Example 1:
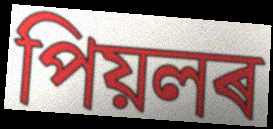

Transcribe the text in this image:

পিয়লৰ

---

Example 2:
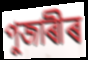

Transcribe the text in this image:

পুজাৰীৰ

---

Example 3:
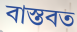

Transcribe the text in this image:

বাস্তবত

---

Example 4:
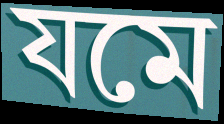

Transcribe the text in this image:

যমে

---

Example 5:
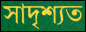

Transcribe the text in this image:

সাদৃশ্যত